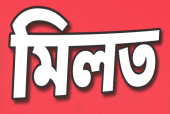
মিলত